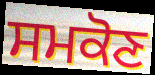
ਸਮਕੋਣ